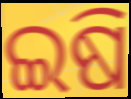
ଇଷି